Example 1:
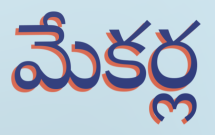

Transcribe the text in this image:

మేకర్ల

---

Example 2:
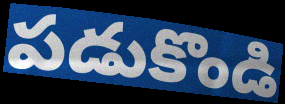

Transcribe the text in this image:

పడుకొండి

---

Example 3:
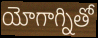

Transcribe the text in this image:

యోగాగ్నితో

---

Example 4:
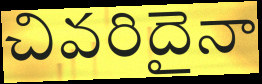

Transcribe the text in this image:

చివరిదైనా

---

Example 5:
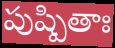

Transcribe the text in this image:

పుష్పితాః